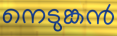
നെടുങ്കൻ